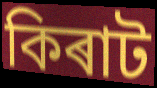
কিৰাট